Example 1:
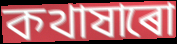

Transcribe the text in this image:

কথাষাৰো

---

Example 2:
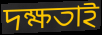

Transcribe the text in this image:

দক্ষতাই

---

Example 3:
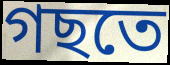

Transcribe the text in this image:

গছতে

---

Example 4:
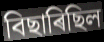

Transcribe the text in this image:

বিছাৰিছিল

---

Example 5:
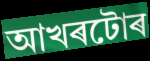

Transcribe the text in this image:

আখৰটোৰ